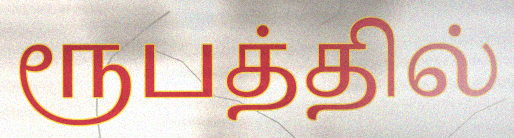
ரூபத்தில்